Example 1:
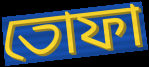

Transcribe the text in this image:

তোফা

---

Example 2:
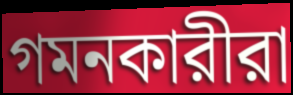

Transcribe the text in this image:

গমনকারীরা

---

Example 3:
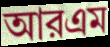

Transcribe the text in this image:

আরএম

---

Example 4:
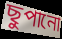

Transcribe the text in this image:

ছুপানো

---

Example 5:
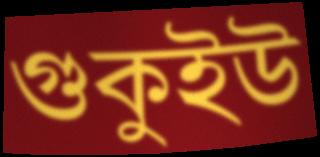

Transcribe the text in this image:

গুকুইউ